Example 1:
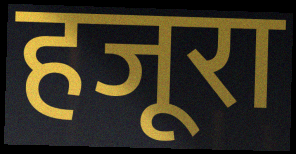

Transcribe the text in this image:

हजूरा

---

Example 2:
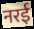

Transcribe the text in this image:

नरई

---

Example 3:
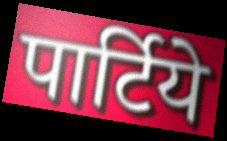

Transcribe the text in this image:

पार्टिये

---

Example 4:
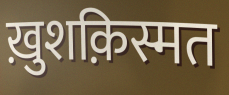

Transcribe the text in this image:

ख़ुशक़िस्मत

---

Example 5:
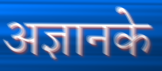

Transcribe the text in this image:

अज्ञानके